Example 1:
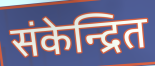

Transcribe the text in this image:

संकेन्द्रित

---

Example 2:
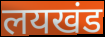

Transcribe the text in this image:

लयखंड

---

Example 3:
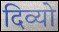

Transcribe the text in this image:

दिव्यो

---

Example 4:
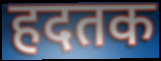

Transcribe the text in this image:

हदतक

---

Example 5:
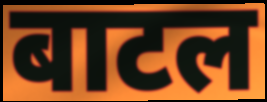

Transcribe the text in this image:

बाटल